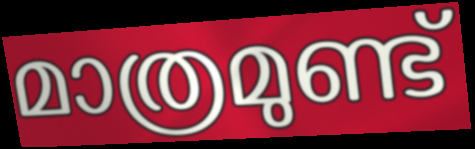
മാത്രമുണ്ട്